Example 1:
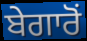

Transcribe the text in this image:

ਬੇਗਾਰੋਂ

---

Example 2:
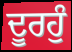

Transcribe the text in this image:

ਦੂਰਹੁੰ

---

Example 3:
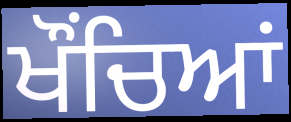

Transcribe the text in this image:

ਖੌਂਚਿਆਂ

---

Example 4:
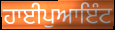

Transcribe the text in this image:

ਹਾਈਪੁਆਇੰਟ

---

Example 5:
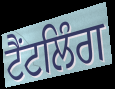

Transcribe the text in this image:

ਟੈਂਟਲਿੰਗ